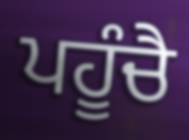
ਪਹੂੰਚੈ